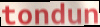
tondun